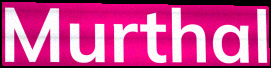
Murthal